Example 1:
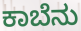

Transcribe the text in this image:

ಕಾಬೆನು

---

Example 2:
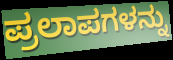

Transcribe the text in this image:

ಪ್ರಲಾಪಗಳನ್ನು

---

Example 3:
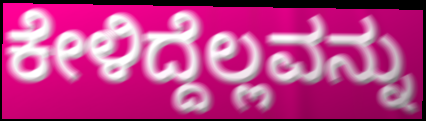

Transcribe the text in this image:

ಕೇಳಿದ್ದೆಲ್ಲವನ್ನು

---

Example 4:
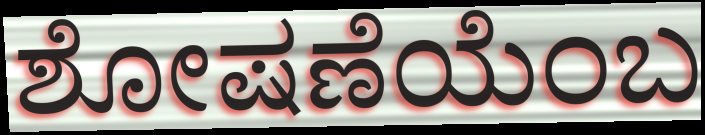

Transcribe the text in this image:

ಶೋಷಣೆಯೆಂಬ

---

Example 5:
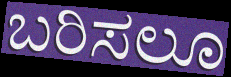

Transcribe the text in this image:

ಬರಿಸಲೂ